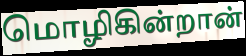
மொழிகின்றான்